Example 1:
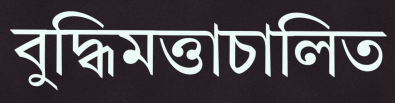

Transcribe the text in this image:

বুদ্ধিমত্তাচালিত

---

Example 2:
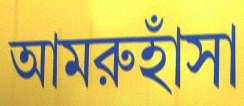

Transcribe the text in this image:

আমরুহাঁসা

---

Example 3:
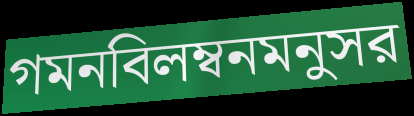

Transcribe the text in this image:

গমনবিলম্বনমনুসর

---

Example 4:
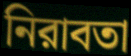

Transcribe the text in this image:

নিরাবতা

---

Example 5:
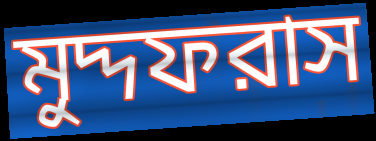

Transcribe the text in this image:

মুদ্দফরাস